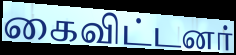
கைவிட்டனர்